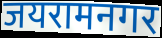
जयरामनगर